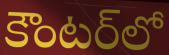
కౌంటర్‌లో